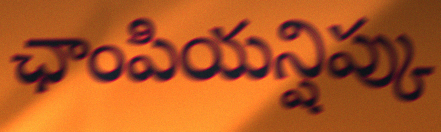
ఛాంపియన్షిప్కు